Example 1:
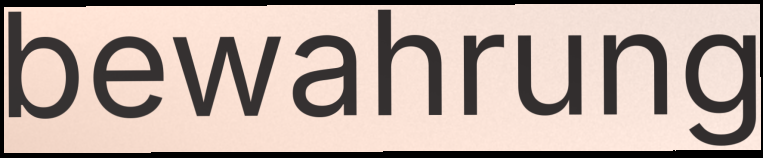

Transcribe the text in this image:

bewahrung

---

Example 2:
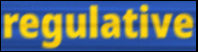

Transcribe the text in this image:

regulative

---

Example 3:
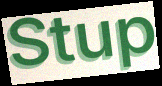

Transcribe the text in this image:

Stup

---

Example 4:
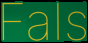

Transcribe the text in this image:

Fals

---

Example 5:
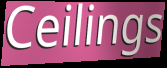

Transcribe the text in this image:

Ceilings